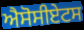
ਐਸੋਸੀਏਟਸ